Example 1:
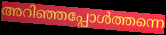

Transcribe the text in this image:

അറിഞ്ഞപ്പോൾത്തന്നെ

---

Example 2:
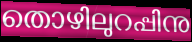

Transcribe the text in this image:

തൊഴിലുറപ്പിനു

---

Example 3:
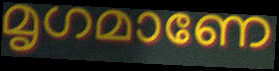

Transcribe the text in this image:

മൃഗമാണേ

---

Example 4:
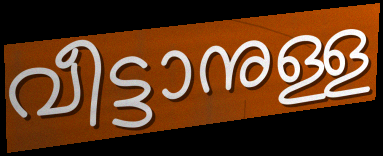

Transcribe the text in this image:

വീട്ടാനുള്ള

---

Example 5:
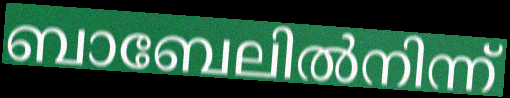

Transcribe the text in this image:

ബാബേലിൽനിന്ന്